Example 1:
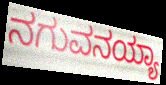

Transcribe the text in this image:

ನಗುವನಯ್ಯಾ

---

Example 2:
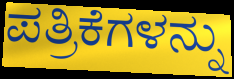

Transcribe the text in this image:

ಪತ್ರಿಕೆಗಳನ್ನು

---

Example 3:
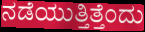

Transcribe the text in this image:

ನಡೆಯುತ್ತಿತ್ತೆಂದು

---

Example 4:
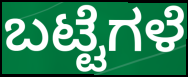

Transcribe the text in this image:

ಬಟ್ಟೆಗಳೆ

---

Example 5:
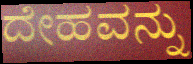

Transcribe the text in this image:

ದೇಹವನ್ನು